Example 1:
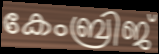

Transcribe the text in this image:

കേംബ്രിജ്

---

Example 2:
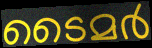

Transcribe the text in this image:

ടൈമർ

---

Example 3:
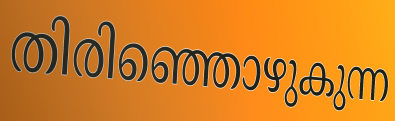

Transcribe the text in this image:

തിരിഞ്ഞൊഴുകുന്ന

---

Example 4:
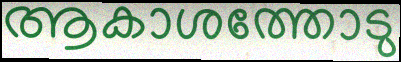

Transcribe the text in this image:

ആകാശത്തോടു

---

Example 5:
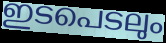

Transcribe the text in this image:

ഇടപെടലും